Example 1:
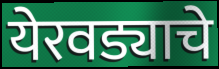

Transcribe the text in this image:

येरवड्याचे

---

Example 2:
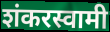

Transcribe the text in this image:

शंकरस्वामी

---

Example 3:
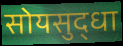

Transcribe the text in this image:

सोयसुद्धा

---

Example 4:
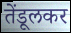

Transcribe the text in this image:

तेंडूलकर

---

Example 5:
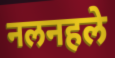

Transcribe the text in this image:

नलनहले